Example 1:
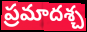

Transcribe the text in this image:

ప్రమాదశ్చ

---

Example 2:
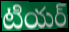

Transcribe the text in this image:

టియర్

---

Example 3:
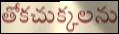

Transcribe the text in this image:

తోకచుక్కలను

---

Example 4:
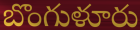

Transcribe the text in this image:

బొంగుళూరు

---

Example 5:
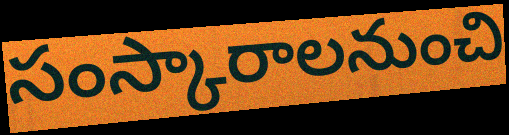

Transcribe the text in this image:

సంస్కారాలనుంచి